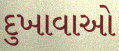
દુખાવાઓ